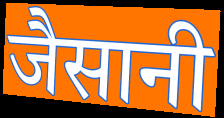
जैसानी